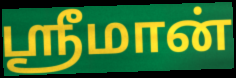
ஸ்ரீமான்